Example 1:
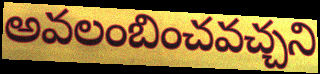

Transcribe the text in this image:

అవలంబించవచ్చని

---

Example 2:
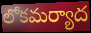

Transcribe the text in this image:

లోకమర్యాద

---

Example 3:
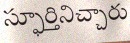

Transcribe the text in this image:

స్ఫూర్తినిచ్చారు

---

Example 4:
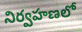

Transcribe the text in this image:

నిర్వహణలో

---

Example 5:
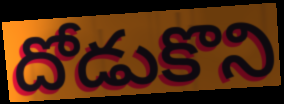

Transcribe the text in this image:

దోడుకొని